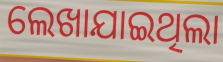
ଲେଖାଯାଇଥିଲା